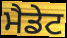
ਮੈਡੇਟ